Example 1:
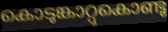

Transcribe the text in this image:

കൊടുങ്കാറ്റുകൊണ്ടു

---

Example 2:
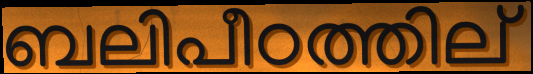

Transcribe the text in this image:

ബലിപീഠത്തില്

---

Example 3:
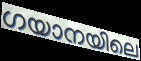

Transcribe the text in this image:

ഗയാനയിലെ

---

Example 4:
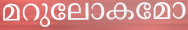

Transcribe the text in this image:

മറുലോകമോ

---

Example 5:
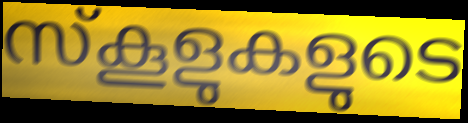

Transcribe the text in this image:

സ്‌കൂളുകളുടെ